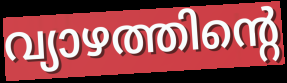
വ്യാഴത്തിന്റെ